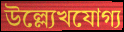
উল্ল্যেখযোগ্য